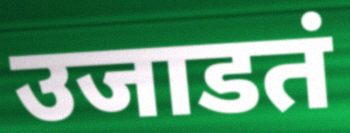
उजाडतं